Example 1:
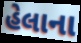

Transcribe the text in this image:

હેલાના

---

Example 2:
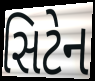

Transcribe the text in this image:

સિટેન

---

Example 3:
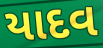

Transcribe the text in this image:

યાદવ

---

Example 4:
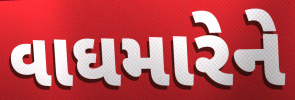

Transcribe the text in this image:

વાઘમારેને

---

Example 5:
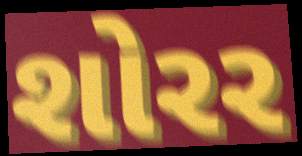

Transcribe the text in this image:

શોરર